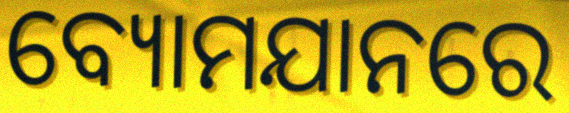
ବ୍ୟୋମଯାନରେ